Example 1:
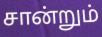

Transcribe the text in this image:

சான்றும்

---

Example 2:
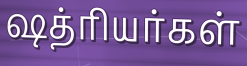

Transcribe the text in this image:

ஷத்ரியர்கள்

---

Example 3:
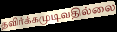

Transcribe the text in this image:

தவிர்க்கமுடிவதில்லை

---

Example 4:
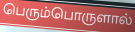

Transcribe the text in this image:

பெரும்பொருளால்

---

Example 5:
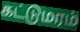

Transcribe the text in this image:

கட்டுமரம்